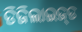
ଡିଜିଲାଇଜ୍‌ଡ